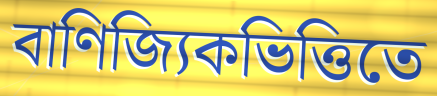
বাণিজ্যিকভিত্তিতে